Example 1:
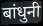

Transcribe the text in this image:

बांधुनी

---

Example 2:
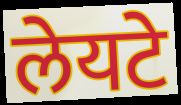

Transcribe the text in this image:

लेयटे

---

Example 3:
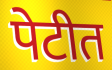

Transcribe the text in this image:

पेटीत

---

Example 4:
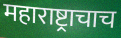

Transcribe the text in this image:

महाराष्ट्राचाच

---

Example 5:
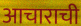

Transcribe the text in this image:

आचाराची